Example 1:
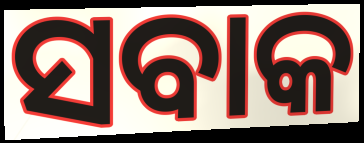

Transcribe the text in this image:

ସବାକ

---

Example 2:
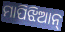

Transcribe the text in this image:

ମାପିଝିଆନ୍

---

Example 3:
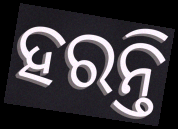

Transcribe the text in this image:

ହରନ୍ତି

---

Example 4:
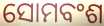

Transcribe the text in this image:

ସୋମବଂଶ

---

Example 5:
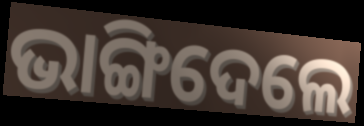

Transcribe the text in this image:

ଭାଙ୍ଗିଦେଲେ